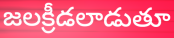
జలక్రీడలాడుతూ